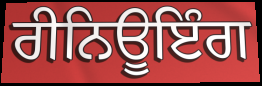
ਰੀਨਿਊਇੰਗ